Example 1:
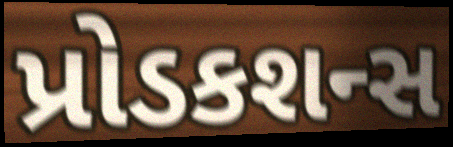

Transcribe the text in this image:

પ્રોડકશન્સ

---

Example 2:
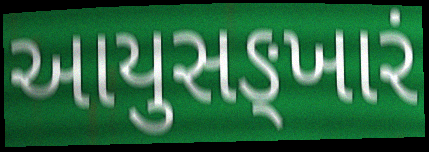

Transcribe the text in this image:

આયુસઙ્ખારં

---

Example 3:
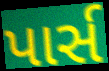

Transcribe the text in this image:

પાર્સ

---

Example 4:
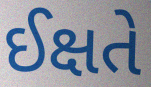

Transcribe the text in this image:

ઈક્ષતે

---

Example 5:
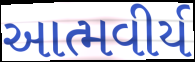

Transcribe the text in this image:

આત્મવીર્ય